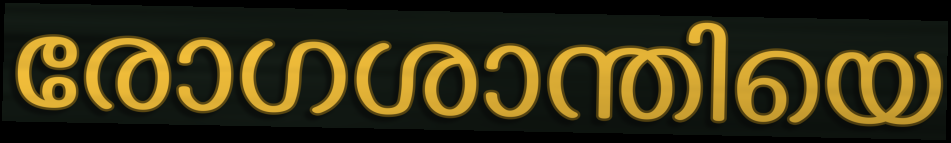
രോഗശാന്തിയെ